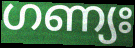
ഗണ്യഃ